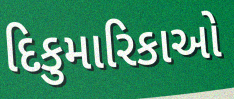
દિકુમારિકાઓ